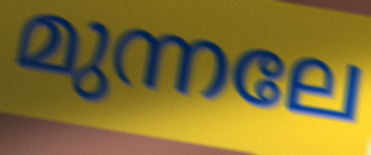
മുന്നലേ